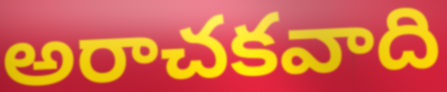
అరాచకవాది